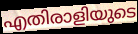
എതിരാളിയുടെ